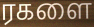
ரகளை